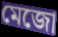
মেজো